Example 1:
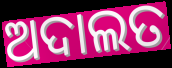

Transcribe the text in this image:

ଅଦାଲତ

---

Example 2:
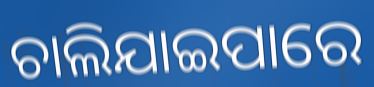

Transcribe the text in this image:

ଚାଲିଯାଇପାରେ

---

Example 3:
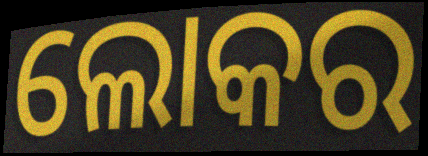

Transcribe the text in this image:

ଲୋକର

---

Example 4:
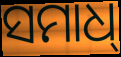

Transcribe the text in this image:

ସମାଧ୍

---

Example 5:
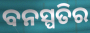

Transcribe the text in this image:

ବନସ୍ପତିର